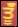
ਤੂੰਁ